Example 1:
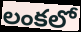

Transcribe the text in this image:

లంకలో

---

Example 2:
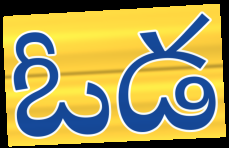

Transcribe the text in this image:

ఓడ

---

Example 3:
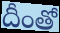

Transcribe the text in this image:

దీంతో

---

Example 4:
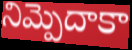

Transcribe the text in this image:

నిమ్పెదాకా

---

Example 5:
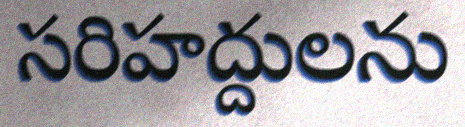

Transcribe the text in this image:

సరిహద్దులను